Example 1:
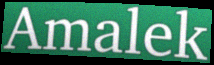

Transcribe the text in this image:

Amalek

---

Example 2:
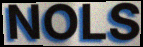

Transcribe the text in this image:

NOLS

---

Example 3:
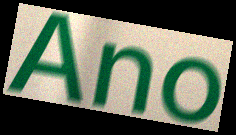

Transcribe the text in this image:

Ano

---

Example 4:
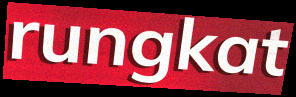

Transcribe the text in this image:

rungkat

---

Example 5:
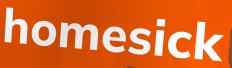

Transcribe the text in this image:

homesick